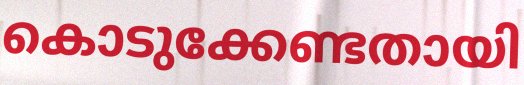
കൊടുക്കേണ്ടതായി